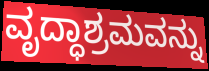
ವೃದ್ಧಾಶ್ರಮವನ್ನು